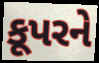
કૂપરને